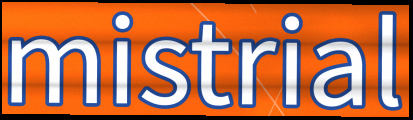
mistrial